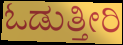
ಓಡುತ್ತೀರಿ